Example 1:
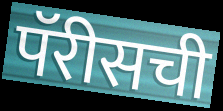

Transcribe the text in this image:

पॅरीसची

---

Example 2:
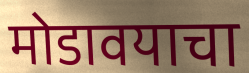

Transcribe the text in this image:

मोडावयाचा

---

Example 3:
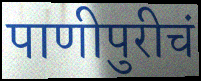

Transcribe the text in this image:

पाणीपुरीचं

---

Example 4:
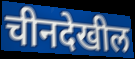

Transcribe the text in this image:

चीनदेखील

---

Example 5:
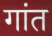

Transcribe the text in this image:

गांत